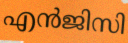
എൻജിസി